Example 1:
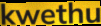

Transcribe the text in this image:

kwethu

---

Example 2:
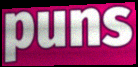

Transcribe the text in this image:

puns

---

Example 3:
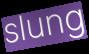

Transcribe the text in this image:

slung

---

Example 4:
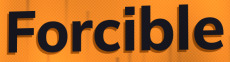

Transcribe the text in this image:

Forcible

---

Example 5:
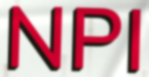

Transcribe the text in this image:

NPI